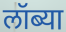
लॉब्या